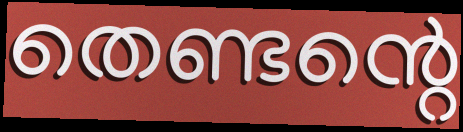
തെണ്ടന്റെ